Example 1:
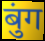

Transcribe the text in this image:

बुंग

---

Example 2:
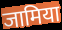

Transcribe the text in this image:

जामिया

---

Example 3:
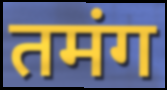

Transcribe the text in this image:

तमंग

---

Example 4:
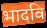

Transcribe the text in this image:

भादवि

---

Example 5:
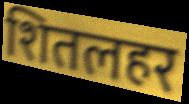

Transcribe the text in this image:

शितलहर